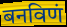
बनविणं